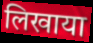
लिखाया